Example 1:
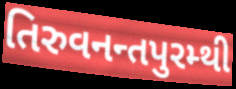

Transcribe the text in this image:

તિરુવનન્તપુરમ્થી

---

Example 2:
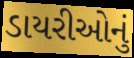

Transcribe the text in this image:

ડાયરીઓનું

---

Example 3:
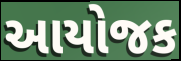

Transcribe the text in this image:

આયોજક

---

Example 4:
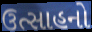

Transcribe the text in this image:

ઉત્સાહનો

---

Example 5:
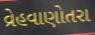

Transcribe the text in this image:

વ્રેહવાણોતરા